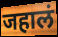
जहालं